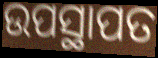
ଉପସ୍ଥାପତ